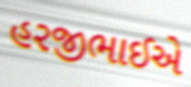
હરજીભાઈએ